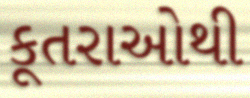
કૂતરાઓથી